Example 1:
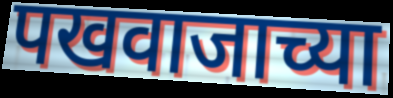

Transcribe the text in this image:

पखवाजाच्या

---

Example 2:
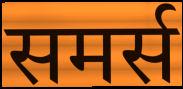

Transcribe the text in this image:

समर्स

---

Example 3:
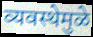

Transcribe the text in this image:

व्यवस्थेमुळे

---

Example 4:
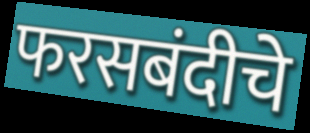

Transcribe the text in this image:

फरसबंदीचे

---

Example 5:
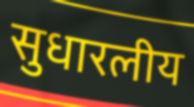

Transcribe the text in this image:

सुधारलीय